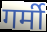
गर्मी